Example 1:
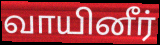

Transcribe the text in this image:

வாயினீர்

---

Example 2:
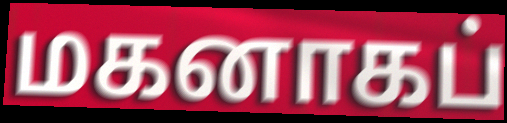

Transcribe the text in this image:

மகனாகப்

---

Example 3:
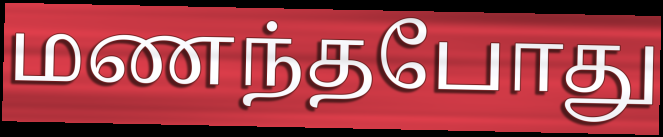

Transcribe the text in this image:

மணந்தபோது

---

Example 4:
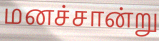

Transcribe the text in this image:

மனச்சான்று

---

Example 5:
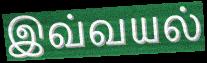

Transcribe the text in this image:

இவ்வயல்